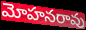
మోహనరావు